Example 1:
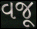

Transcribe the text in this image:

વજૂ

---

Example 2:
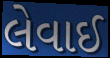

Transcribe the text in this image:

લેવાઈ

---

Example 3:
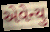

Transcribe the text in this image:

એવેન્યુ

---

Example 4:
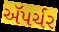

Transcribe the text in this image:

ઍપર્ચર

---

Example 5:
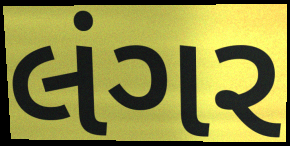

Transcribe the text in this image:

લંગર